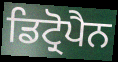
ਡਿਟ੍ਰੋਪੈਨ